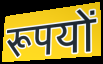
रूपयों